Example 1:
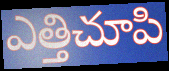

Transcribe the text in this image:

ఎత్తిచూపి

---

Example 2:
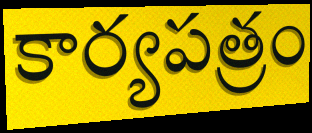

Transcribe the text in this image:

కార్యపత్రం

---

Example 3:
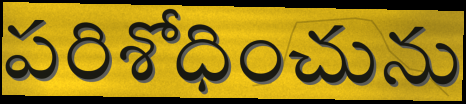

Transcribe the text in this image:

పరిశోధించును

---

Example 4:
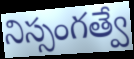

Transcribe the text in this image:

నిస్సంగత్వే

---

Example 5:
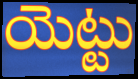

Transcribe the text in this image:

యెట్టు